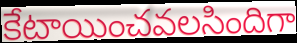
కేటాయించవలసిందిగా